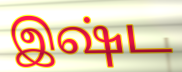
இஷ்ட